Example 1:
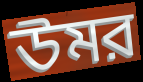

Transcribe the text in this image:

উমর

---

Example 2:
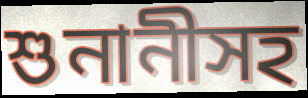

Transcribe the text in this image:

শুনানীসহ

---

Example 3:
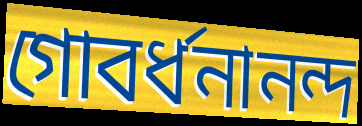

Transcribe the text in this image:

গোবর্ধনানন্দ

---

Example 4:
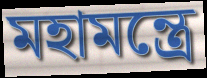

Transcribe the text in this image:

মহামন্ত্রে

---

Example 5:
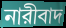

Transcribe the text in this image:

নারীবাদ